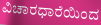
ವಿಚಾರಧಾರೆಯಿಂದ